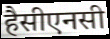
हैसीएनसी